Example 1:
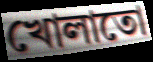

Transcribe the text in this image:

খোলাতো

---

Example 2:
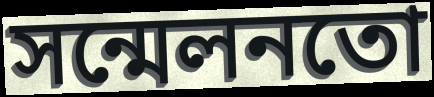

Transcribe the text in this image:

সন্মেলনতো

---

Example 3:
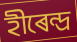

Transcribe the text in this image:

হীৰেন্দ্ৰ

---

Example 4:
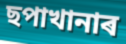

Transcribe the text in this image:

ছপাখানাৰ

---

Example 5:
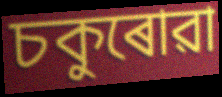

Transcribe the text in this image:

চকুৰোৱা